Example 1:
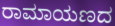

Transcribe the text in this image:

ರಾಮಾಯಣದ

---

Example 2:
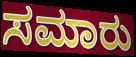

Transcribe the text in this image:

ಸಮಾರು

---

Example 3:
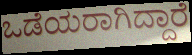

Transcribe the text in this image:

ಒಡೆಯರಾಗಿದ್ದಾರೆ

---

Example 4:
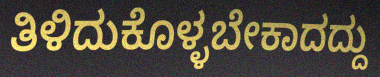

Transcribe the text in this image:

ತಿಳಿದುಕೊಳ್ಳಬೇಕಾದದ್ದು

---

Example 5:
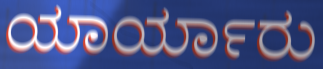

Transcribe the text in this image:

ಯಾರ್ಯಾರು